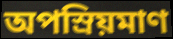
অপস্রিয়মাণ